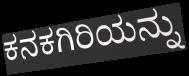
ಕನಕಗಿರಿಯನ್ನು